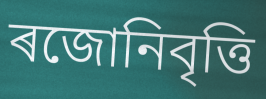
ৰজোনিবৃত্তি